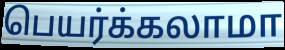
பெயர்க்கலாமா